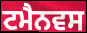
ਟਮੈਨਵਸ